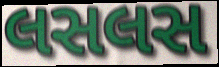
લસલસ